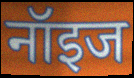
नॉइज